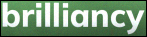
brilliancy